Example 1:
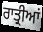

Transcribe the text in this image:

ਰਾਤ੍ਰੀਆਂ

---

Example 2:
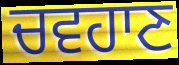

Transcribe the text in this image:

ਚਵਹਾਣ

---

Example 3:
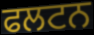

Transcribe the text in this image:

ਫਲਟਨ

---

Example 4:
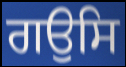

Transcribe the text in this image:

ਗਉਸਿ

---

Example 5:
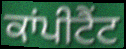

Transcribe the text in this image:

ਕਾਂਪੀਟੈਂਟ